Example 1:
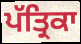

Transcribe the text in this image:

ਪੱਤ੍ਰਿਕਾ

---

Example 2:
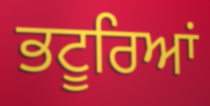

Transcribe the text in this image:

ਭਟੂਰਿਆਂ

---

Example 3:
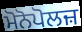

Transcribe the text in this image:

ਮੋਨੋਪੋਲਜ਼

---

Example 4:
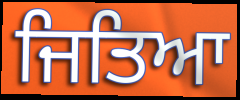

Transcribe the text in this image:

ਜਿਤਿਆ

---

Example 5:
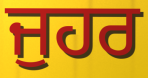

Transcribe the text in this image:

ਜੁਹਰ